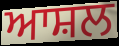
ਆਸ਼ਲ